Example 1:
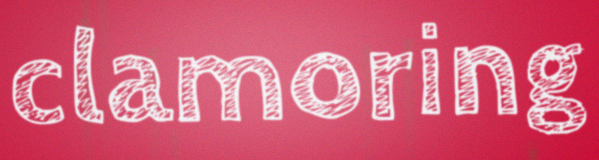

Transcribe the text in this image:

clamoring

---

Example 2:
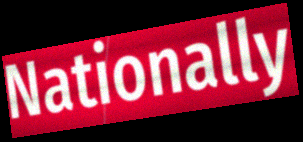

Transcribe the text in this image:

Nationally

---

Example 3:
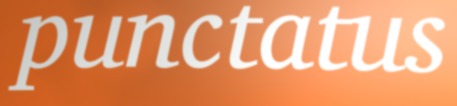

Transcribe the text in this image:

punctatus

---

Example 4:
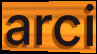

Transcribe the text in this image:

arci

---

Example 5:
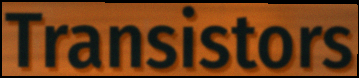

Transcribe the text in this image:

Transistors